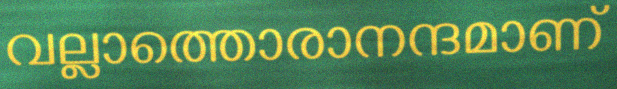
വല്ലാത്തൊരാനന്ദമാണ്